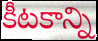
కీటకాన్ని